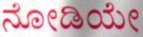
ನೋಡಿಯೇ